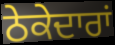
ਠੇਕੇਦਾਰਾਂ